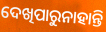
ଦେଖିପାରୁନାହାନ୍ତି